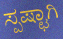
ಸ್ಪಷ್ಟಾಗಿ